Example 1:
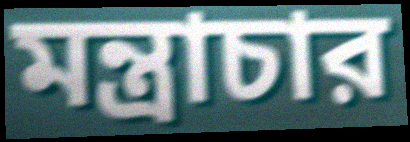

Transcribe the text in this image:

মন্ত্রাচার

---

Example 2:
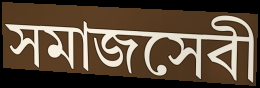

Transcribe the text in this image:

সমাজসেবী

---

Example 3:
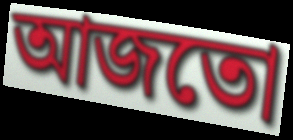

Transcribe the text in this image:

আজতো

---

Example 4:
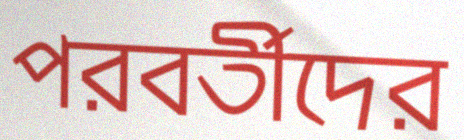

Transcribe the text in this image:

পরবর্তীদের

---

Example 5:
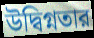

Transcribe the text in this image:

উদ্বিগ্নতার